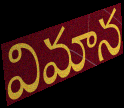
విమాన